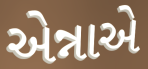
એન્નાએ